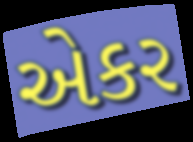
એકર